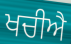
ਖਚੀਐ